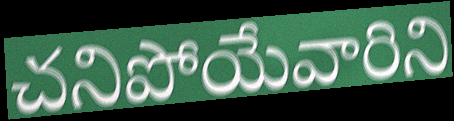
చనిపోయేవారిని